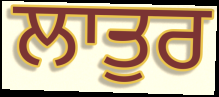
ਲਾਤੁਰ